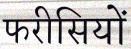
फरीसियों